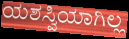
ಯಶಸ್ವಿಯಾಗಿಲ್ಲ